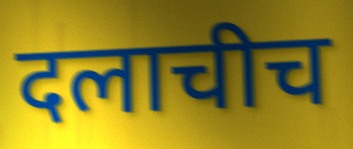
दलाचीच